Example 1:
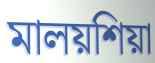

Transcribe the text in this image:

মালয়শিয়া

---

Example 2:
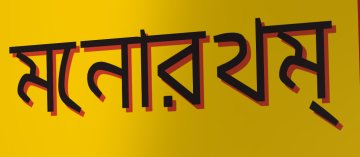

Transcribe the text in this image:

মনোরথম্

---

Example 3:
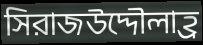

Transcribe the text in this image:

সিরাজউদ্দৌলাহ্র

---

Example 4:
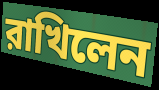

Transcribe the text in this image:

রাখিলেন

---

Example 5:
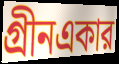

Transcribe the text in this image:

গ্রীনএকার